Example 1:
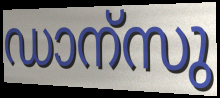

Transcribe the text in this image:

ഡാന്സു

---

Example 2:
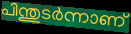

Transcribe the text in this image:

പിന്തുടർന്നാണ്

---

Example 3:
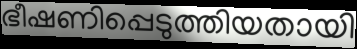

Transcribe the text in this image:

ഭീഷണിപ്പെടുത്തിയതായി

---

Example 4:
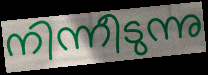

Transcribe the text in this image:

നിന്നീടുന്നു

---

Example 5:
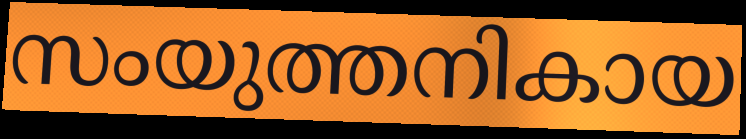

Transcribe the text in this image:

സംയുത്തനികായ